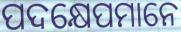
ପଦକ୍ଷେପମାନେ